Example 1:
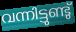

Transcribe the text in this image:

വന്നിട്ടുണ്ടു്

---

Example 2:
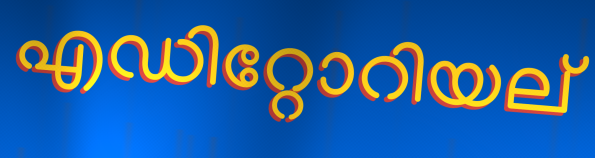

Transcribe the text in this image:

എഡിറ്റോറിയല്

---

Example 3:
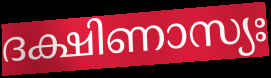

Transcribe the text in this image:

ദക്ഷിണാസ്യഃ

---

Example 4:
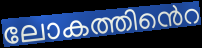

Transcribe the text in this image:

ലോകത്തിൻെറ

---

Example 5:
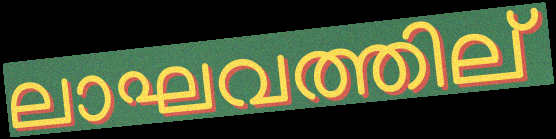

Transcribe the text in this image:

ലാഘവത്തില്